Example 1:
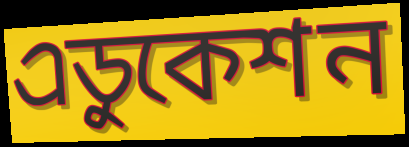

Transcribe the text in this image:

এডুকেশন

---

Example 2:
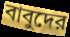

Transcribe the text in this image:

বাবুদের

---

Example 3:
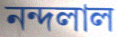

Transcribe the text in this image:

নন্দলাল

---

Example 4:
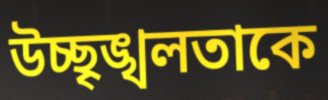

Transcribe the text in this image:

উচ্ছৃঙ্খলতাকে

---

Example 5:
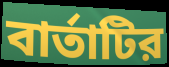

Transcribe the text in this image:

বার্তাটির